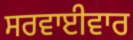
ਸਰਵਾਈਵਾਰ